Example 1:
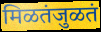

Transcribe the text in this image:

मिळतंजुळतं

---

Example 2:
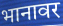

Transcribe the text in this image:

भानावर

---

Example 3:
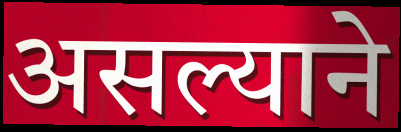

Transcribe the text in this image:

असल्‍याने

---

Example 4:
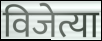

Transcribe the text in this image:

विजेत्या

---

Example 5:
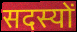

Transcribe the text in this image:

सदस्यों